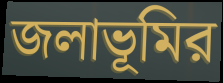
জলাভূমির